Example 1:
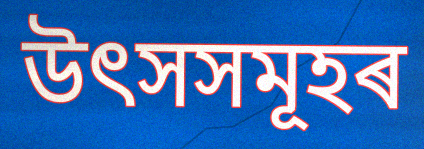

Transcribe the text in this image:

উৎসসমূহৰ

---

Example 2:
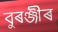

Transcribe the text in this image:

বুৰঞ্জীৰ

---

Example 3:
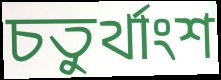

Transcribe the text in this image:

চতুৰ্থাংশ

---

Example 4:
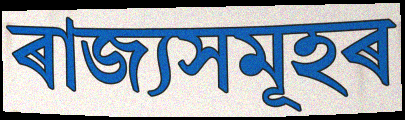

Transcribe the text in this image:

ৰাজ্যসমূহৰ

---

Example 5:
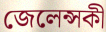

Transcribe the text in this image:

জেলেন্সকী